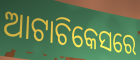
ଆଟାଚିକେସରେ